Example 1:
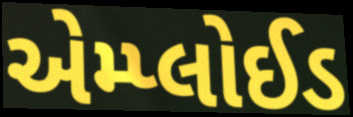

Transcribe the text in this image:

એમ્પ્લોઈડ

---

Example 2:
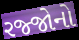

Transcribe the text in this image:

રજ્જોનો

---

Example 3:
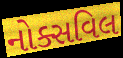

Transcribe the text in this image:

નોક્સવિલ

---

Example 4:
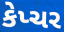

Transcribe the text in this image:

કેપ્ચર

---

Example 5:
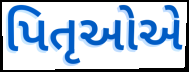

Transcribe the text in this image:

પિતૃઓએ